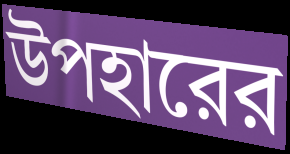
উপহারের